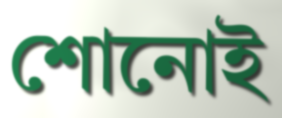
শোনোই